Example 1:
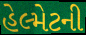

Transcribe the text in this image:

હેલ્મેટની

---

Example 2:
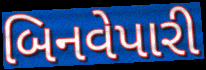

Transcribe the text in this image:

બિનવેપારી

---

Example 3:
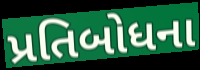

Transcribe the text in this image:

પ્રતિબોધના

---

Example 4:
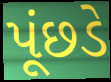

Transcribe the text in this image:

પૂંછડે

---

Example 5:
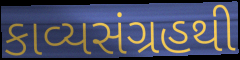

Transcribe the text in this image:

કાવ્યસંગ્રહથી